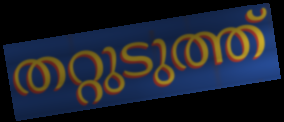
തറ്റുടുത്ത്